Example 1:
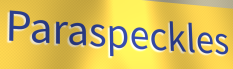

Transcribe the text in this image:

Paraspeckles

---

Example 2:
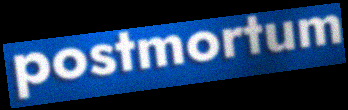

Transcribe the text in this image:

postmortum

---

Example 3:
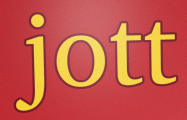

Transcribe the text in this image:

jott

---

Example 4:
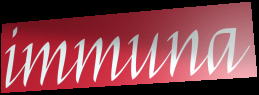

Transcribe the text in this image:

immuna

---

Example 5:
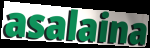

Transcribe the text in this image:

asalaina